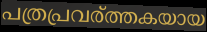
പത്രപ്രവര്ത്തകയായ